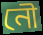
নৌ